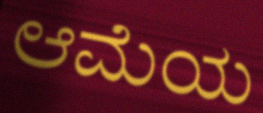
ಆಮೆಯ